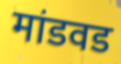
मांडवड